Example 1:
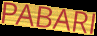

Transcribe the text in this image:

PABARI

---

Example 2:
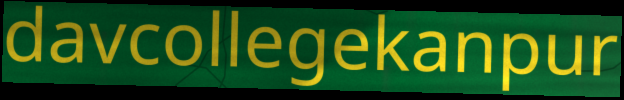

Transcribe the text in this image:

davcollegekanpur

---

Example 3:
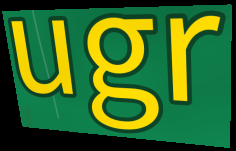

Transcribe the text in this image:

ugr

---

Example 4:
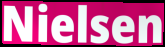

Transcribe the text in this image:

Nielsen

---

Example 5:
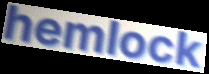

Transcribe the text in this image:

hemlock